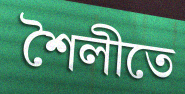
শৈলীতে